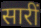
सारीं